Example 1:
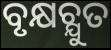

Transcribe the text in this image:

ବୃକ୍ଷଚ୍ଯୁତ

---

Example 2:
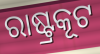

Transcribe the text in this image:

ରାଷ୍ଟ୍ରକୂଟ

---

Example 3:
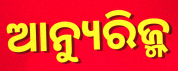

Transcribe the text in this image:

ଆନ୍ୟୁରିଜ୍ମ୍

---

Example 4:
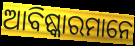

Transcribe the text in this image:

ଆବିଷ୍କାରମାନେ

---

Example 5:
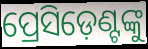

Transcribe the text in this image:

ପ୍ରେସିଡ଼େଣ୍ଟଙ୍କୁ